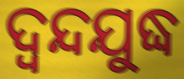
ଦ୍ୱନ୍ଦଯୁଦ୍ଧ